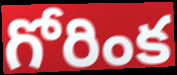
గోరింక